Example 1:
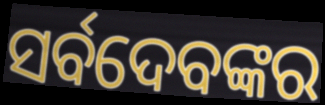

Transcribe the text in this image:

ସର୍ବଦେବଙ୍କର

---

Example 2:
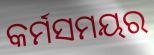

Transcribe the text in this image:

କର୍ମସମୟର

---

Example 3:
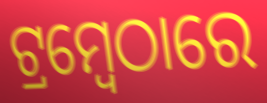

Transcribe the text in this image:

ଟ୍ରମ୍ବେଠାରେ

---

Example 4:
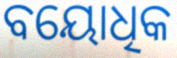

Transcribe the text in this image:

ବୟୋଧିକ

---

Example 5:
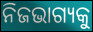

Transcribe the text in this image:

ନିଜଭାଗ୍ୟକୁ